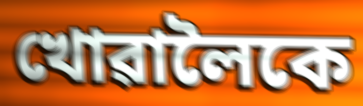
খোৱালৈকে